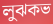
লুঝকভ